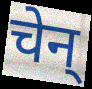
चेन्